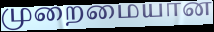
முறைமையான